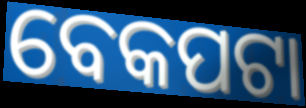
ବେକପଟା